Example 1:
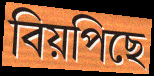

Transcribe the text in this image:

বিয়পিছে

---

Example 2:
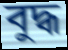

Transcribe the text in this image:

বুদ্ধ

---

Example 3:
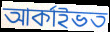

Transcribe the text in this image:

আৰ্কাইভত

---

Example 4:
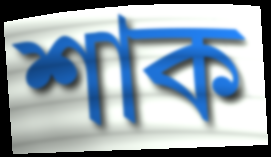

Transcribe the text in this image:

শাক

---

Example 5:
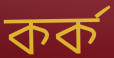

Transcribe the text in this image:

কৰ্ক